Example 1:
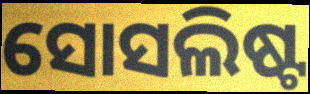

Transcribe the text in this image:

ସୋସଲିଷ୍ଟ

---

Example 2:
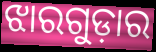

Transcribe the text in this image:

ଝାରଗୁଡ଼ାର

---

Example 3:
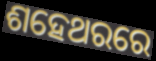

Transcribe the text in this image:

ଶହେଥରରେ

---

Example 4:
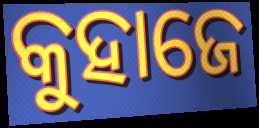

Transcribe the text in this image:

କୁହାଜେ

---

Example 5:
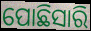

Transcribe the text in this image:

ପୋଛିସାରି